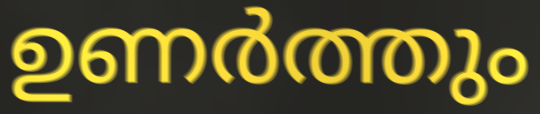
ഉണർത്തും